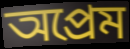
অপ্রেম